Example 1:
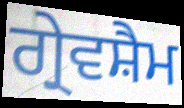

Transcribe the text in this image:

ਗ੍ਰੇਵਸ਼ੈਮ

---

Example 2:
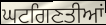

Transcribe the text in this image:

ਘਟਗਿਣਤੀਆਂ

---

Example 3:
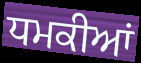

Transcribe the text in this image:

ਧਮਕੀਆਂ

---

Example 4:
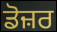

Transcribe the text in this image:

ਡੋਜ਼ਰ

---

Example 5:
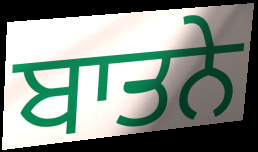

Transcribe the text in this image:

ਬਾਤਨੇ